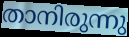
താനിരുന്നു